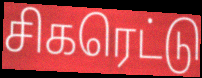
சிகரெட்டு